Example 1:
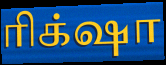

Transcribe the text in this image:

ரிக்‌ஷா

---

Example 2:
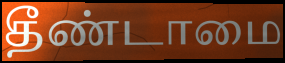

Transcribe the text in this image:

தீண்டாமை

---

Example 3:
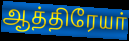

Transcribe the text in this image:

ஆத்திரேயர்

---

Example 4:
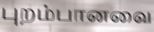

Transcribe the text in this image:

புறம்பானவை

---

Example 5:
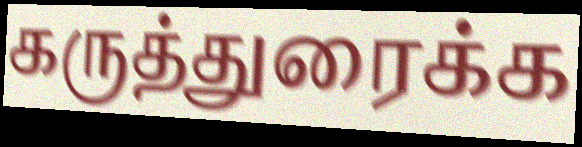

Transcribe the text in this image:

கருத்துரைக்க